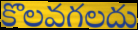
కొలవగలదు